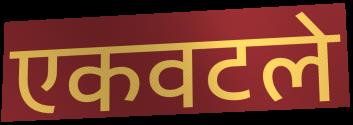
एकवटले